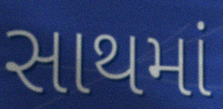
સાથમાં